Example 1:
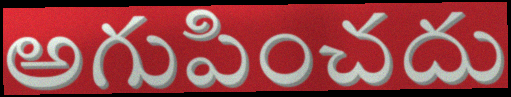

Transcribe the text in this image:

అగుపించదు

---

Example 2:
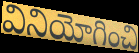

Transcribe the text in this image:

వినియోగించి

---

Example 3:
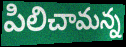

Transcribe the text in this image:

పిలిచామన్న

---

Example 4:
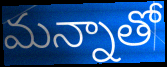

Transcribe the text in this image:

మన్నాతో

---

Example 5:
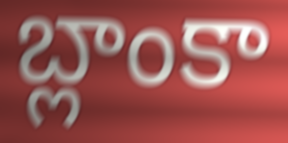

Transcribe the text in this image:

బ్లాంకా